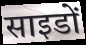
साइडों